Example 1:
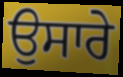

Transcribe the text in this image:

ਉਸਾਰੇ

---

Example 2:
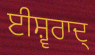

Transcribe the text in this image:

ਈਸ਼੍ਵਰਾਦ੍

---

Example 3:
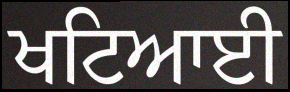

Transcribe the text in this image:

ਖਟਿਆਈ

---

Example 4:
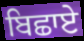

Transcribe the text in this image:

ਬਿਛਾਏ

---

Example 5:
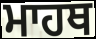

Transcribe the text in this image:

ਮਾਹਥ